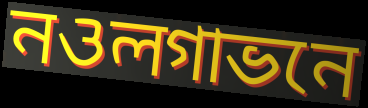
নওলগাভনে